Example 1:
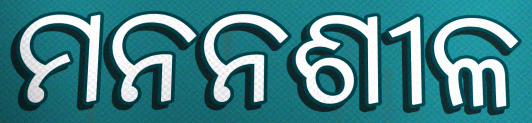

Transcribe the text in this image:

ମନନଶୀଳ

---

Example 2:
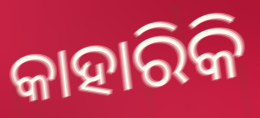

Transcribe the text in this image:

କାହାରିକି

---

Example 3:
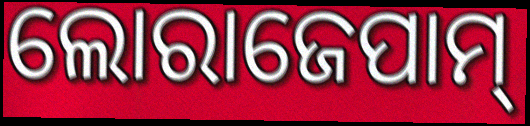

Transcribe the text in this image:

ଲୋରାଜେପାମ୍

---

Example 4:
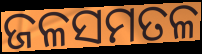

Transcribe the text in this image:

ଜଳସମତଳ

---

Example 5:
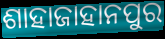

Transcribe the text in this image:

ଶାହାଜାହାନପୁର